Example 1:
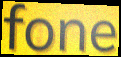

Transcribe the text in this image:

fone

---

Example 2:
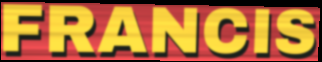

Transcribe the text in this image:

FRANCIS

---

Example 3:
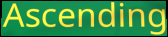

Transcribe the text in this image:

Ascending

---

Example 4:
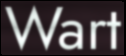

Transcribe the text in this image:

Wart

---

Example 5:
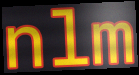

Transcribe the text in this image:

nlm